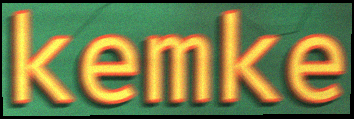
kemke